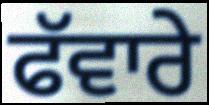
ਫੱਵਾਰੇ